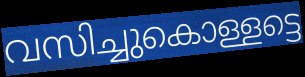
വസിച്ചുകൊള്ളട്ടെ